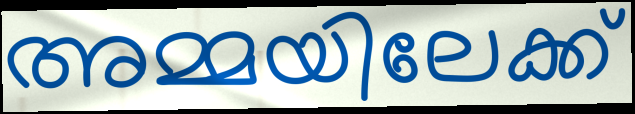
അമ്മയിലേക്ക്